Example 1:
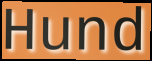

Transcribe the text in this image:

Hund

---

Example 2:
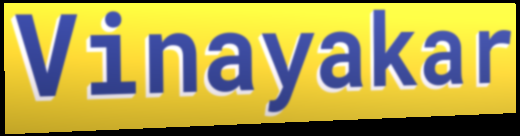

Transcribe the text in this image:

Vinayakar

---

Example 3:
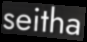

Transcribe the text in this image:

seitha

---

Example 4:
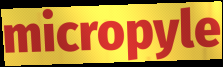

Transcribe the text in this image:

micropyle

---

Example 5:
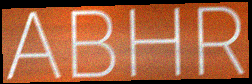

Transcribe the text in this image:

ABHR